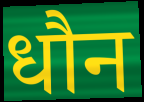
धौन